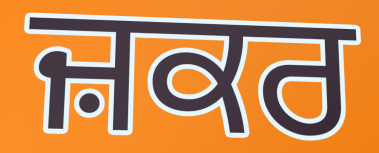
ਜ਼ਕਰ